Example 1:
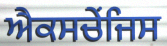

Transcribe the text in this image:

ਐਕਸਚੇਂਜਿਸ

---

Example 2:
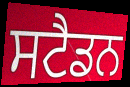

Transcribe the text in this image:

ਸਟੈਡਨ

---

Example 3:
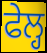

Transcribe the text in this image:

ਫੇਲ੍ਹ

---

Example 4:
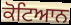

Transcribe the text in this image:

ਕੋਟਿਆਨ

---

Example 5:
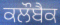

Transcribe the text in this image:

ਕਲੌਬੈਕ